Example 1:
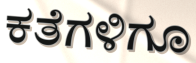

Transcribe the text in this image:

ಕತೆಗಳಿಗೂ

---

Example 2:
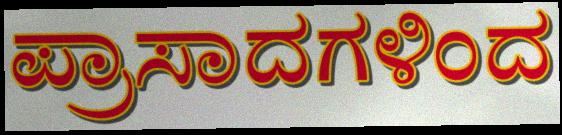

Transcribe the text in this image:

ಪ್ರಾಸಾದಗಳಿಂದ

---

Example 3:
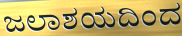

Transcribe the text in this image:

ಜಲಾಶಯದಿಂದ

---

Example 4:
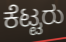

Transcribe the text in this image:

ಕೆಟ್ಟರು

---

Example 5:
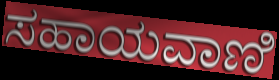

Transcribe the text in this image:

ಸಹಾಯವಾಣಿ